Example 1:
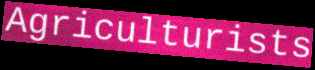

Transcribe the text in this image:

Agriculturists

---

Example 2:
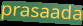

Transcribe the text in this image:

prasaada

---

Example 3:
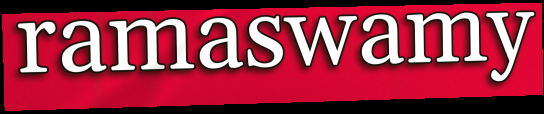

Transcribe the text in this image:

ramaswamy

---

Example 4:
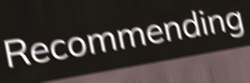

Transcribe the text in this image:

Recommending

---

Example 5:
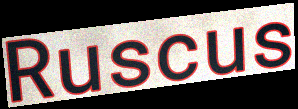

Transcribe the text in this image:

Ruscus